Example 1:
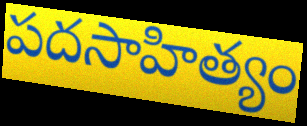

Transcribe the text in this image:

పదసాహిత్యం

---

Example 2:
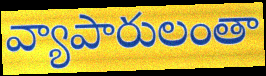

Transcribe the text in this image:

వ్యాపారులంతా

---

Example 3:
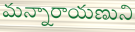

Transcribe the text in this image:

మన్నారాయణుని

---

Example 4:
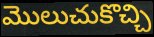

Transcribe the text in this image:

మొలుచుకొచ్చి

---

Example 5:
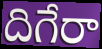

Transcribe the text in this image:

దిగేరా